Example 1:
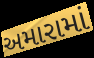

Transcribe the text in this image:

અમારામાં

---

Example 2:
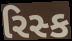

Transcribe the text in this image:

રિસ્ક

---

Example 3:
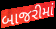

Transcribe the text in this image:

બાજરીમાં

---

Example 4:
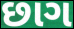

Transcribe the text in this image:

છાગ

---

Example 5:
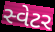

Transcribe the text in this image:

સ્વેટર